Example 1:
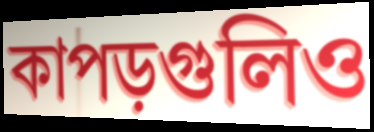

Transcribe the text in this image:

কাপড়গুলিও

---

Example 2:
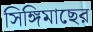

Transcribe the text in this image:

সিঙ্গিমাছের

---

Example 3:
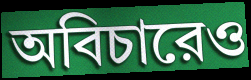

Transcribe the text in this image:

অবিচারেও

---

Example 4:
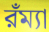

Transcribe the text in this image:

রঁম্যা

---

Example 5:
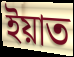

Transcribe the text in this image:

ইয়াত